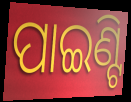
ପାଇଣ୍ଟି